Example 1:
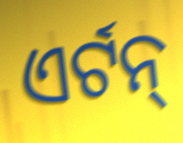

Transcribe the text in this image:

ଏର୍ଟନ୍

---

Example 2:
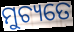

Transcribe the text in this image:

ମୁଚ୍ୟତେ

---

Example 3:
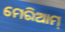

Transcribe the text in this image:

ମେରିଆମ୍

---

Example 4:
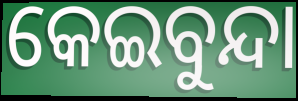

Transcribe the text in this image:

କେଇବୁନ୍ଦା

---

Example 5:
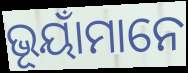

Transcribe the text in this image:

ଭୂୟାଁମାନେ